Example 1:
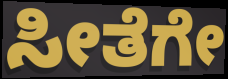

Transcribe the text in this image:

ಸೀತೆಗೇ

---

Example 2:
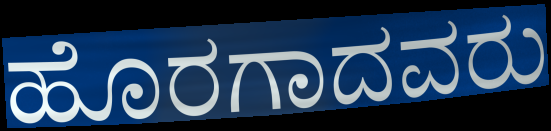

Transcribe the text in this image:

ಹೊರಗಾದವರು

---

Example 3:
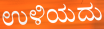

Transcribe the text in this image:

ಉಳಿಯದು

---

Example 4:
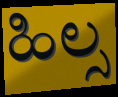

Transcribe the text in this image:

ಹಿಲ್ಸ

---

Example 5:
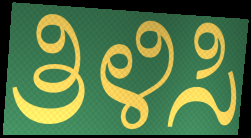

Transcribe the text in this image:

ತಿಳಿಸಿ